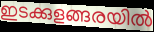
ഇടക്കുളങ്ങരയിൽ